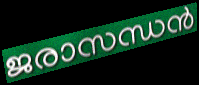
ജരാസന്ധൻ